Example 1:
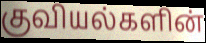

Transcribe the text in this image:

குவியல்களின்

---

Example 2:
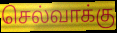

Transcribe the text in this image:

செல்வாக்கு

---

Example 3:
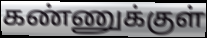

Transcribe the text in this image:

கண்ணுக்குள்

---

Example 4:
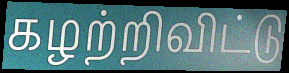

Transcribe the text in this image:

கழற்றிவிட்டு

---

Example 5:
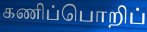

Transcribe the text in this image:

கணிப்பொறிப்